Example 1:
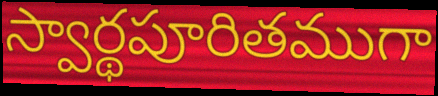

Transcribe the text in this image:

స్వార్థపూరితముగా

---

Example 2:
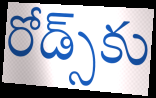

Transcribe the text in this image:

రోడ్స్‌కు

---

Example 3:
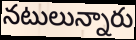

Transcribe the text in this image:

నటులున్నారు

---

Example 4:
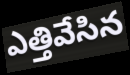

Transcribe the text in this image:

ఎత్తివేసిన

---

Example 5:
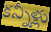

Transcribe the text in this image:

కన్నీళ్లు